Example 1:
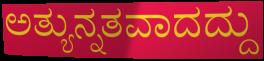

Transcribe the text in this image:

ಅತ್ಯುನ್ನತವಾದದ್ದು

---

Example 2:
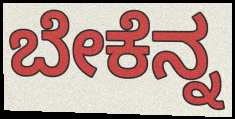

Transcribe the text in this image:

ಬೇಕೆನ್ನ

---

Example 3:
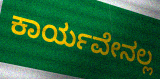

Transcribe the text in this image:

ಕಾರ್ಯವೇನಲ್ಲ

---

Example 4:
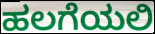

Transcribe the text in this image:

ಹಲಗೆಯಲಿ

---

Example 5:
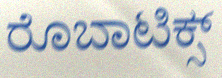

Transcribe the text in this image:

ರೊಬಾಟಿಕ್ಸ್